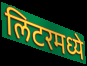
लिटरमध्ये